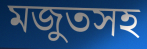
মজুতসহ